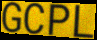
GCPL